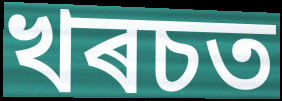
খৰচত